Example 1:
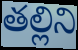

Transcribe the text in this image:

తల్లిని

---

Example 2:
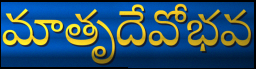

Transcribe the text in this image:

మాతృదేవోభవ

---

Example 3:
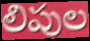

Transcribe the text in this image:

లిపుల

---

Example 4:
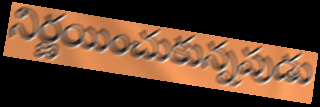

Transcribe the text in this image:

నిర్ణయించుకున్నపుడు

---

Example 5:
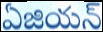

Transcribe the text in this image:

ఏజియన్